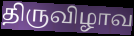
திருவிழாவ